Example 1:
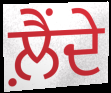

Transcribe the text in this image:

ਲ਼ੈਂਦੇ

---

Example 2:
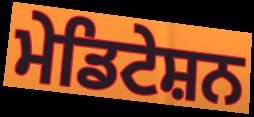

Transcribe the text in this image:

ਮੇਡਿਟੇਸ਼ਨ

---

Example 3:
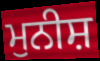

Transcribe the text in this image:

ਮੁਨੀਸ਼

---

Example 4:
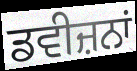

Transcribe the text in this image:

ਡਵੀਜ਼ਨਾਂ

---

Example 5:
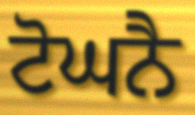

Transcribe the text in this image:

ਟੋਘਨੈ